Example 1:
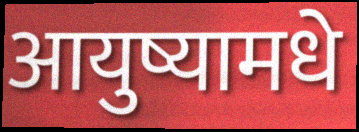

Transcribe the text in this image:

आयुष्यामधे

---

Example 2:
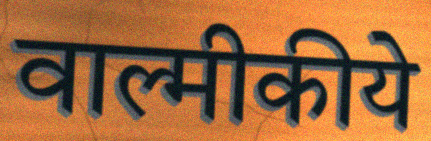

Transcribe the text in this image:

वाल्मीकीये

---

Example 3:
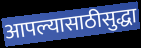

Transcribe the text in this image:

आपल्यासाठीसुद्धा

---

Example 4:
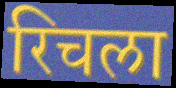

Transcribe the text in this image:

रिचला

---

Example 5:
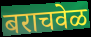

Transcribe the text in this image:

बराचवेळ